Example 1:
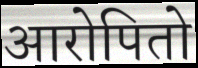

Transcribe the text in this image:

आरोपितो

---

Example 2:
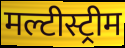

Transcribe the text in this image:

मल्टीस्ट्रीम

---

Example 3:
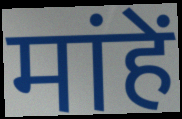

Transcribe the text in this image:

मांहें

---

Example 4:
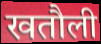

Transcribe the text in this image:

खतौली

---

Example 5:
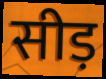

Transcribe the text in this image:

सीड़